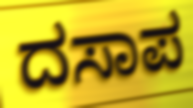
ದಸಾಪ